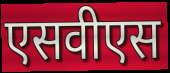
एसवीएस